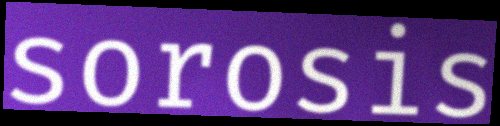
sorosis